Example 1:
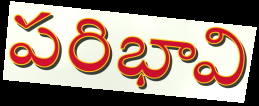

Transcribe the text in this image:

పరిభావి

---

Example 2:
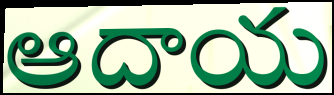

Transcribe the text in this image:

ఆదాయ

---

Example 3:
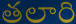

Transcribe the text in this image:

తలారి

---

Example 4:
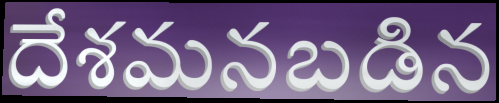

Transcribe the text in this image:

దేశమనబడిన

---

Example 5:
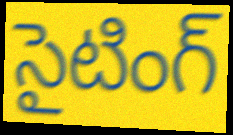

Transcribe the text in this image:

సైటింగ్